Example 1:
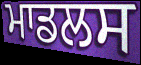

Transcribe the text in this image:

ਮਾਡਲਸ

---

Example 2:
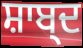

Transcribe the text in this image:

ਸ਼ਾਬ੍ਦ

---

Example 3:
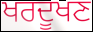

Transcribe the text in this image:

ਖਰਦੂਖਣ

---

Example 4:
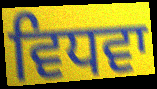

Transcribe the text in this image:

ਵਿਧਵਾ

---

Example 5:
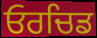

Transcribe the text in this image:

ਓਰਚਿਡ